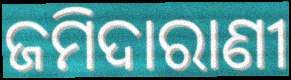
ଜମିଦାରାଣୀ